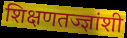
शिक्षणतज्ज्ञांशी